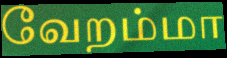
வேறம்மா